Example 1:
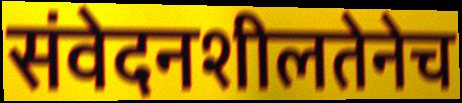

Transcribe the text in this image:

संवेदनशीलतेनेच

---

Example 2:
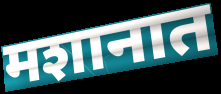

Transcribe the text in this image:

मशानात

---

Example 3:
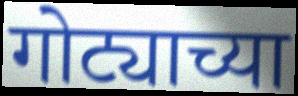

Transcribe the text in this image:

गोट्याच्या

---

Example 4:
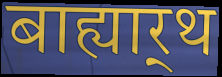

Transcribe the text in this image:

बाह्यार्थ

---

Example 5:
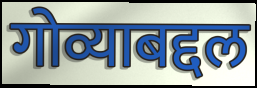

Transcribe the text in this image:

गोव्याबद्दल